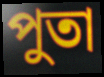
পুতা